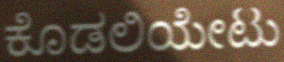
ಕೊಡಲಿಯೇಟು